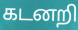
கடனறி